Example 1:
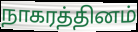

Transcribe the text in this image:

நாகரத்தினம்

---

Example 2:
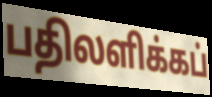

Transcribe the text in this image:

பதிலளிக்கப்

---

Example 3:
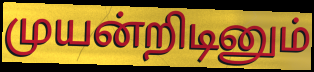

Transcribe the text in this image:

முயன்றிடினும்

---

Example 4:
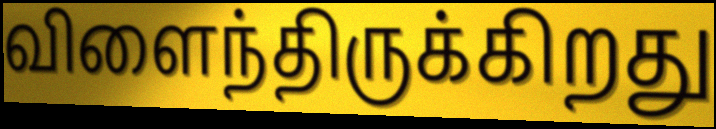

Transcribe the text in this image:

விளைந்திருக்கிறது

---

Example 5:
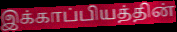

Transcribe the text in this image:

இக்காப்பியத்தின்